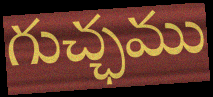
గుచ్ఛము